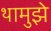
थामुझे